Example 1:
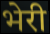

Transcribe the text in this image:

भेरी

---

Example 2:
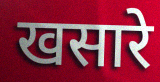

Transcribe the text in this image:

खसारे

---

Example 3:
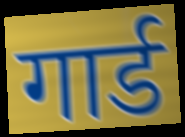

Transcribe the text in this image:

गार्ड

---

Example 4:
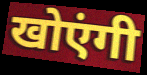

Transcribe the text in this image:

खोएंगी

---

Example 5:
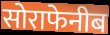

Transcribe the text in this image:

सोराफेनीब